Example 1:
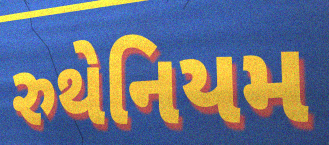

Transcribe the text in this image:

રુથેનિયમ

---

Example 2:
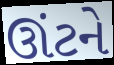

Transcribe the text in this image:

ઊંટને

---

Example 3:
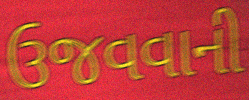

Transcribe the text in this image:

ઉજવવાની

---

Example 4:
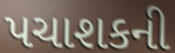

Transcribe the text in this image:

પચાશકની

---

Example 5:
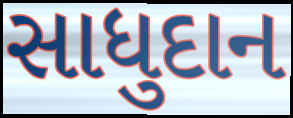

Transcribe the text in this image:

સાધુદાન